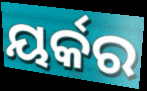
ୟର୍କର